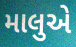
માલુએ